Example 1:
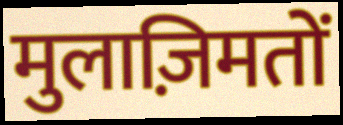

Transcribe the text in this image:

मुलाज़िमतों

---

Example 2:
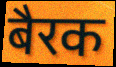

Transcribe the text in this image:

बैरक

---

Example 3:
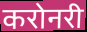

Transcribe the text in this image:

करोनरी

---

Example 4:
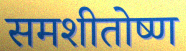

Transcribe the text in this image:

समशीतोष्ण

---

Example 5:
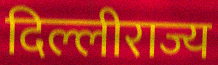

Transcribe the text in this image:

दिल्लीराज्य